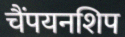
चैंपयनशिप